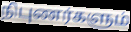
நிபுணர்களும்